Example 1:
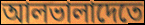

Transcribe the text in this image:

আলভালাদেতে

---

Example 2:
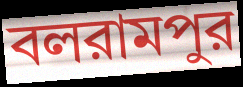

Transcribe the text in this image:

বলরামপুর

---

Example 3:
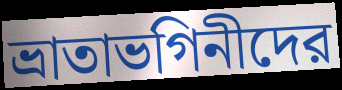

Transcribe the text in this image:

ভ্রাতাভগিনীদের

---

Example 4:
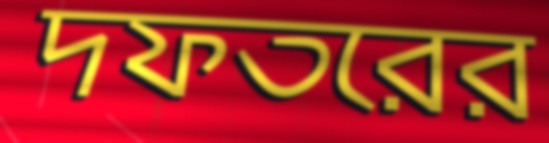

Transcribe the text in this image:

দফতরের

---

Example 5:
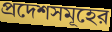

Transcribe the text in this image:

প্রদেশসমূহের